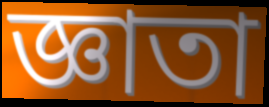
জ্ঞাতা